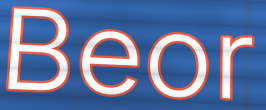
Beor